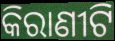
କିରାଣୀଟି